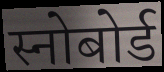
स्नोबोर्ड